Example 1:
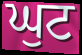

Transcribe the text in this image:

ਘੁਟ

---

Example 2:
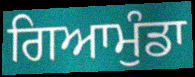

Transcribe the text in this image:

ਗਿਆਮੁੰਡਾ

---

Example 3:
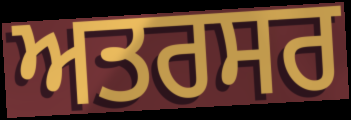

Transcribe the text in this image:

ਅਤਰਸਰ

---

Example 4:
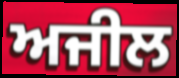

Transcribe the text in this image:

ਅਜੀਲ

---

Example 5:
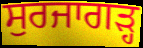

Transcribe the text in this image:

ਸੁਰਜਾਗੜ੍ਹ